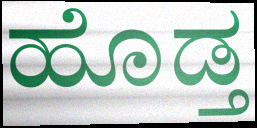
ಹೊಡ್ತ